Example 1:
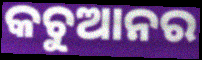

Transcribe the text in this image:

କଚୁଆନର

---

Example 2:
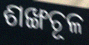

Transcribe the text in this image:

ଶଙ୍ଖଚୂଳ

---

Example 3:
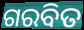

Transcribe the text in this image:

ଗରବିତ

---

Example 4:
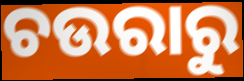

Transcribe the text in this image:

ଚଉରାରୁ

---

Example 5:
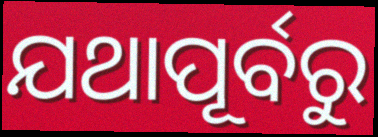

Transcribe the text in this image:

ଯଥାପୂର୍ବରୁ